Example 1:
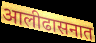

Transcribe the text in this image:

आलीढासनात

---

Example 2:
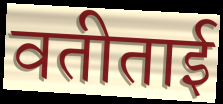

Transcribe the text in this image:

वतीताई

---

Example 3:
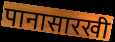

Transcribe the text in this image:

पानासारखी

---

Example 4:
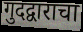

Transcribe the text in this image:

गुदद्वाराचा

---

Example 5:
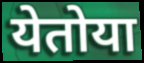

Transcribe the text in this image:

येतोया